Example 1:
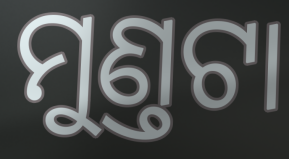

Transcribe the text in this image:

ମୁଣ୍ତଟା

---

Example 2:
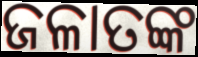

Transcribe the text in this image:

ଜଳାତଙ୍କ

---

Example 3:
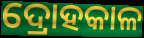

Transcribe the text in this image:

ଦ୍ରୋହକାଳ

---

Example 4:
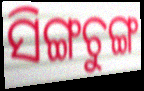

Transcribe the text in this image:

ସିଙ୍ଗଚୁଙ୍ଗ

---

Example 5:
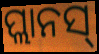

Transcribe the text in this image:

ପ୍ଲାନସ୍